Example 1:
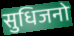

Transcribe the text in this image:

सुधिजनो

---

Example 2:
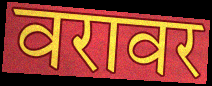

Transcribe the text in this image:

वरावर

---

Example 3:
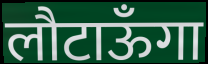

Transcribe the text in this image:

लौटाऊँगा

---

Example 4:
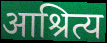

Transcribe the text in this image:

आश्रित्य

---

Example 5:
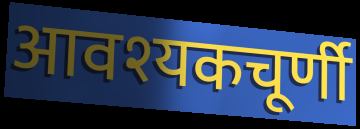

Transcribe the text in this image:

आवश्यकचूर्णी